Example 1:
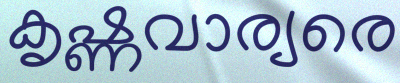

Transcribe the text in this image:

കൃഷ്ണവാര്യരെ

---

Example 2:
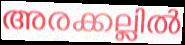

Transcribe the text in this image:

അരക്കല്ലിൽ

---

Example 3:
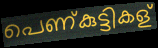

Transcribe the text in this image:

പെണ്കുട്ടികള്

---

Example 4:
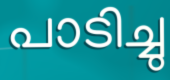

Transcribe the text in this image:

പാടിച്ചു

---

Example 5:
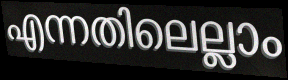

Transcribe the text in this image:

എന്നതിലെല്ലാം